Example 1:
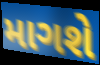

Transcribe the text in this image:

માગશે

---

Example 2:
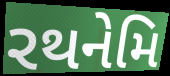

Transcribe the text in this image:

રથનેમિ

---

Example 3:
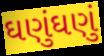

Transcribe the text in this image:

ઘણુંઘણું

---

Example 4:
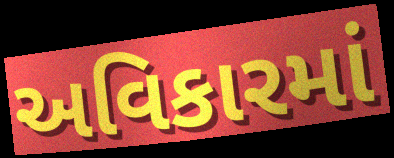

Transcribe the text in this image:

અવિકારમાં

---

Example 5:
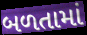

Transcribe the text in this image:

બળતામાં